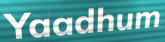
Yaadhum